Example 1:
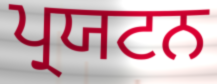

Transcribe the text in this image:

ਪ੍ਰਯਟਨ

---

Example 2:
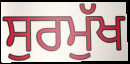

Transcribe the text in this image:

ਸੁਰਮੁੱਖ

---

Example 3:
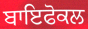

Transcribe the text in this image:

ਬਾਇਫੋਕਲ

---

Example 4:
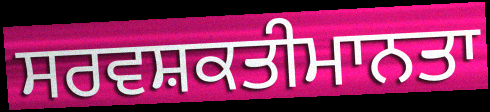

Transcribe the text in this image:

ਸਰਵਸ਼ਕਤੀਮਾਨਤਾ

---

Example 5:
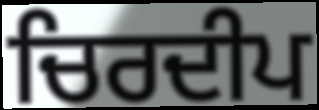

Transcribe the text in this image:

ਚਿਰਦੀਪ